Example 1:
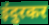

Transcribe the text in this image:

इंदुरकर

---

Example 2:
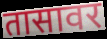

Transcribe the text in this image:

तासावर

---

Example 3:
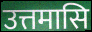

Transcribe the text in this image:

उत्तमासि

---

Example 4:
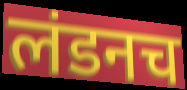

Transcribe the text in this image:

लंडनच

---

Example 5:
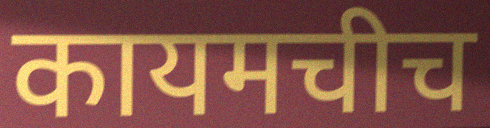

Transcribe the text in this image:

कायमचीच